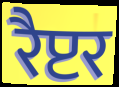
रैप्टर